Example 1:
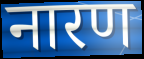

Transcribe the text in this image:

नारण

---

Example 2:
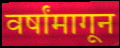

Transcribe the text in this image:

वर्षांमागून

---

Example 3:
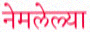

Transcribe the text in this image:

नेमलेल्या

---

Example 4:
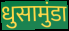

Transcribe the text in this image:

धुसामुंडा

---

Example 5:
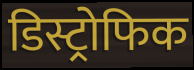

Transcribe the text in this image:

डिस्ट्रोफिक